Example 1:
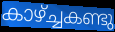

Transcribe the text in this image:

കാഴ്ച്ചകണ്ടു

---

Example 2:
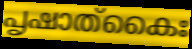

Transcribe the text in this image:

പൃഷാത്കൈഃ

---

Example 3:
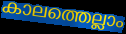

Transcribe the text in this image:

കാലത്തെല്ലാം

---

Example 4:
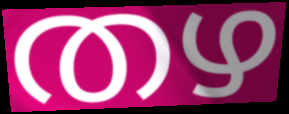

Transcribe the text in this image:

തഴ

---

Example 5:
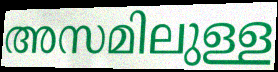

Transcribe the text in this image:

അസമിലുള്ള